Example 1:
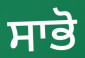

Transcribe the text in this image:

ਸਾਭੋ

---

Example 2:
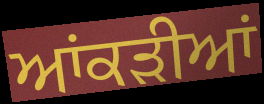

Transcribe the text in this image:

ਆਂਕੜੀਆਂ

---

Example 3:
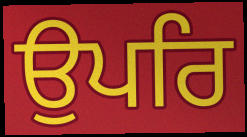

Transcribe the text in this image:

ਉਪਰਿ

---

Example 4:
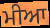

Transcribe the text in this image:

ਮੀਆ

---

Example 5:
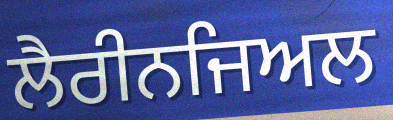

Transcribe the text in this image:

ਲੈਰੀਨਜਿਅਲ